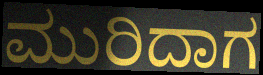
ಮುರಿದಾಗ